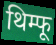
थिम्फू